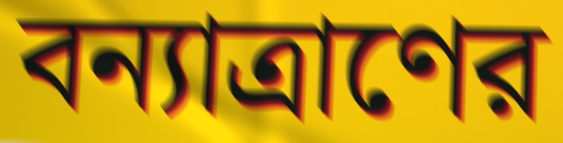
বন্যাত্রাণের